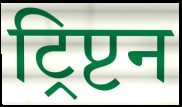
ट्रिप्टन